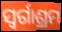
ସ୍ୱର୍ଗାଶ୍ରମ